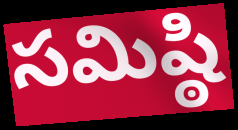
సమిష్ఠి